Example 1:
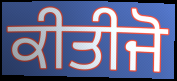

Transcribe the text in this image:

ਕੀਤੀਜੋ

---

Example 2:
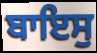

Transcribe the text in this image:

ਬਾਇਸੁ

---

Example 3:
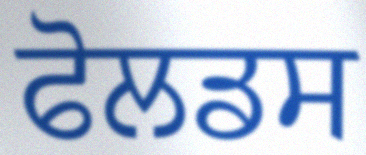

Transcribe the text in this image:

ਫੋਲਡਸ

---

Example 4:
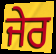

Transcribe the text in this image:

ਜੇਰ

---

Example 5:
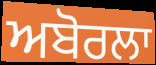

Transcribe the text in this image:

ਅਬੋਰਲਾ